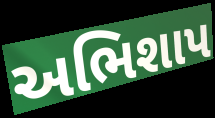
અભિશાપ